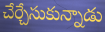
చేర్చేసుకున్నాడు